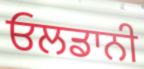
ਓਲਡਾਨੀ